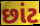
છાંટ